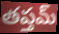
తప్తమ్